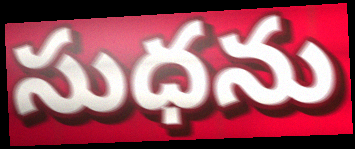
సుధను